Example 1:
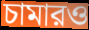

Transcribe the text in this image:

চামারও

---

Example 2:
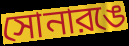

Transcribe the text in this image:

সোনারঙে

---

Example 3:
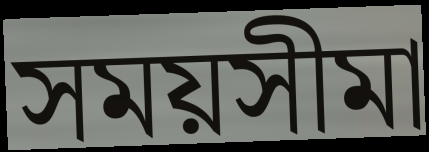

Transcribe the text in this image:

সময়সীমা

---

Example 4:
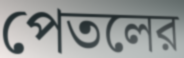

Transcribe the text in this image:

পেতলের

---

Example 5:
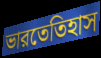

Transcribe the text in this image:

ভারতেতিহাস